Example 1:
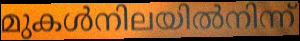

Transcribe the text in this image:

മുകൾനിലയിൽനിന്ന്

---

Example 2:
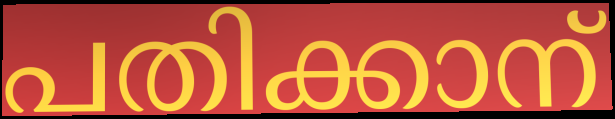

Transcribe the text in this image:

പതിക്കാന്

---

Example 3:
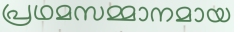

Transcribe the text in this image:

പ്രഥമസമ്മാനമായ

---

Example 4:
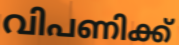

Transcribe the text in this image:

വിപണിക്ക്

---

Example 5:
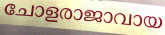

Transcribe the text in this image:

ചോളരാജാവായ